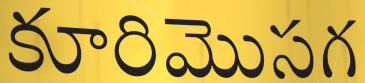
కూరిమొసగ